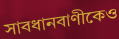
সাবধানবাণীকেও